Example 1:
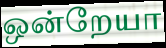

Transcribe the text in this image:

ஒன்றேயா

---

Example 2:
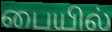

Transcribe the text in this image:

பையில்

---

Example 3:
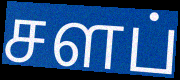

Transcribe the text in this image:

சளப்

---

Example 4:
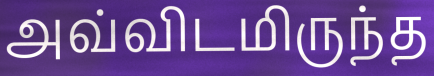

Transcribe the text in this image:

அவ்விடமிருந்த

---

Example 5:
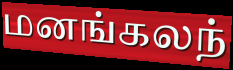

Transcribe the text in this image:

மனங்கலந்